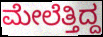
ಮೇಲೆತ್ತಿದ್ದ